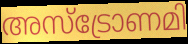
അസ്ട്രോണമി